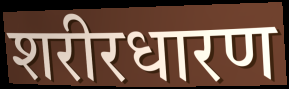
शरीरधारण